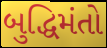
બુદ્ધિમંતો